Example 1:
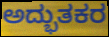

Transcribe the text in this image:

ಅದ್ಭುತಕರ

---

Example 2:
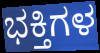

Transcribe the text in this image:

ಭಕ್ತಿಗಳ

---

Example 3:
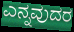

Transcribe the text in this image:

ಎನ್ನವುದರ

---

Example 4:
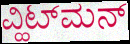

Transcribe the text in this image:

ವ್ಹಿಟ್‌ಮನ್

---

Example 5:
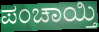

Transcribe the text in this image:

ಪಂಚಾಯ್ತಿ